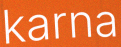
karna